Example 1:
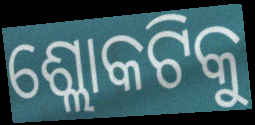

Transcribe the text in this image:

ଶ୍ଲୋକଟିକୁ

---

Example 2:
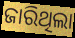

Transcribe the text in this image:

ଜାରିଥିଲା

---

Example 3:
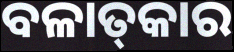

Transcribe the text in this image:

ବଳାତ୍‌କାର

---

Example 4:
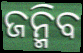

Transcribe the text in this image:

ଜନ୍ମିବ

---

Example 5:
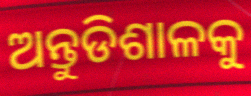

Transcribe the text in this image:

ଅନ୍ତୁଡିଶାଳକୁ